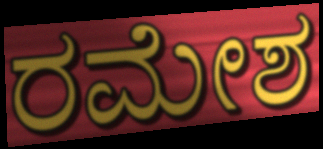
ರಮೇಶ